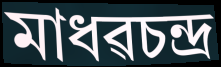
মাধৱচন্দ্ৰ